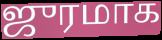
ஜுரமாக